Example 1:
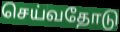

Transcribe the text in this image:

செய்வதோடு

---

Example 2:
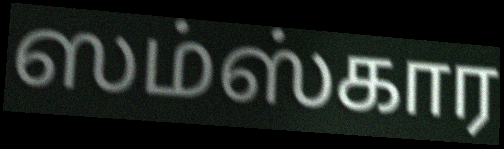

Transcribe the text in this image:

ஸம்ஸ்கார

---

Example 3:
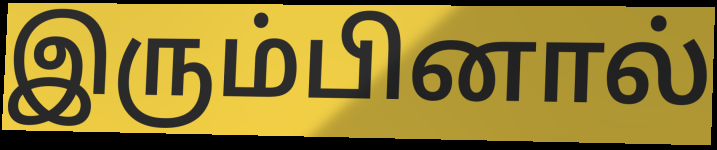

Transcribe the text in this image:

இரும்பினால்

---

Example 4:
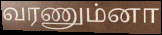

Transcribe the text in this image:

வரணும்னா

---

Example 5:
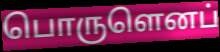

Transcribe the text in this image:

பொருளெனப்